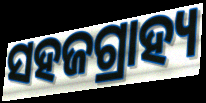
ସହଜଗ୍ରାହ୍ୟ